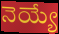
నెయ్యే